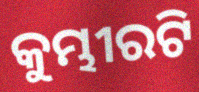
କୁମ୍ଭୀରଟି